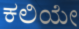
ಕಲಿಯೇ